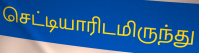
செட்டியாரிடமிருந்து